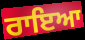
ਰਾਇਆ